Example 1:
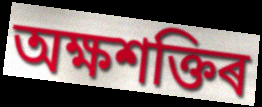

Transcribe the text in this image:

অক্ষশক্তিৰ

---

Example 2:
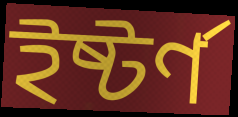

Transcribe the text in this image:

ইষ্টৰ্ণ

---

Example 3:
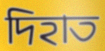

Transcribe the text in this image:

দিহাত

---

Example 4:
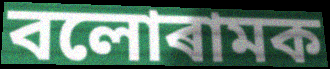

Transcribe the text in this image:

বলোৰামক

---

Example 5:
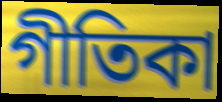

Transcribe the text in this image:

গীতিকা